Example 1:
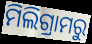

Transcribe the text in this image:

ମିଲିଗ୍ରାମରୁ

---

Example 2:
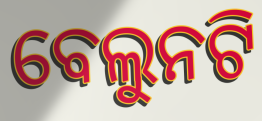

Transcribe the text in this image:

ବେଲୁନଟି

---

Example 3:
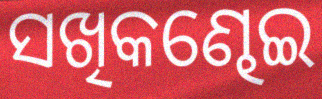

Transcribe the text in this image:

ସଖିକଣ୍ଢେଇ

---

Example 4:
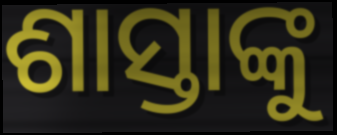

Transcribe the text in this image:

ଶାସ୍ତାଙ୍କୁ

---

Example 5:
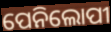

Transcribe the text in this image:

ପେନିଲୋପୀ